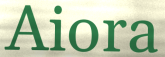
Aiora